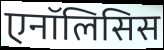
एनॉलिसिस